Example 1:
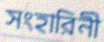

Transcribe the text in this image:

সংহারিনী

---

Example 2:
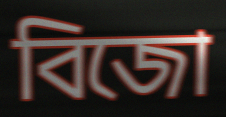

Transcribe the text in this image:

বিজো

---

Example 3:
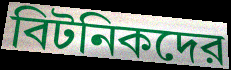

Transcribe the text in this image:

বিটনিকদের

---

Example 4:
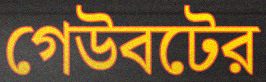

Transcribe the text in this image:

গেউবটের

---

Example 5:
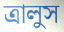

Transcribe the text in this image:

ত্রালুস